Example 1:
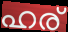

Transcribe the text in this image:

ഹര്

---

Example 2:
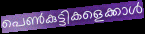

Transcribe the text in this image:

പെൺകുട്ടികളെക്കാൾ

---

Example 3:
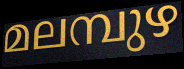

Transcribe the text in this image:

മലമ്പുഴ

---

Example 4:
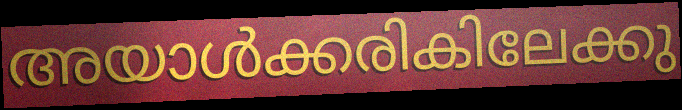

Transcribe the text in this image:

അയാൾക്കരികിലേക്കു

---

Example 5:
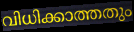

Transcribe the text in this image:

വിധിക്കാത്തതും